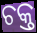
ଚକ୍ତ